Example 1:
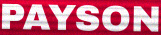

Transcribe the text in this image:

PAYSON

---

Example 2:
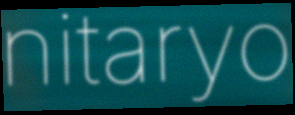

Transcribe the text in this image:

nitaryo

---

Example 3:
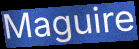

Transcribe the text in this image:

Maguire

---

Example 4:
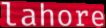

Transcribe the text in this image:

lahore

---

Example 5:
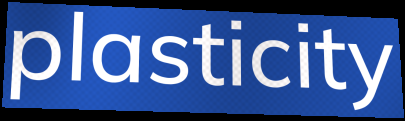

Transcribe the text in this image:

plasticity